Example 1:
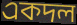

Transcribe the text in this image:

একদল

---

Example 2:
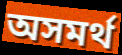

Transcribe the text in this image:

অসমর্থ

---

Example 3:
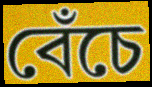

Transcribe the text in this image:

বেঁচে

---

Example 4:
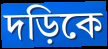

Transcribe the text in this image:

দড়িকে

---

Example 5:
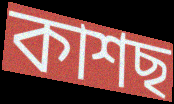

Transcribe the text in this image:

কাশছ